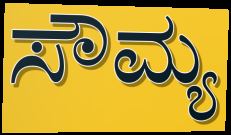
ಸೌಮ್ಯ